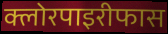
क्लोरपाइरीफास